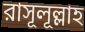
রাসূলূল্লাহ